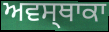
ਅਵਸ੍ਥਾਕਾ